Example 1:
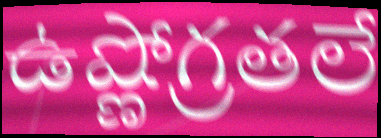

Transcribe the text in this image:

ఉష్ణోగ్రతలే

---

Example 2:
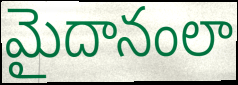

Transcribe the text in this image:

మైదానంలా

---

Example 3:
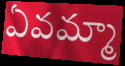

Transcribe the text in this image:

ఏవమ్మా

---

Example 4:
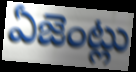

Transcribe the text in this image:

ఏజెంట్లు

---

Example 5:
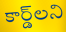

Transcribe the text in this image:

కార్డ్‌లని